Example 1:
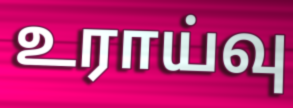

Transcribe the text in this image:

உராய்வு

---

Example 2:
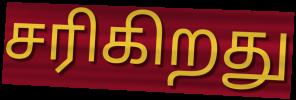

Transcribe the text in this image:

சரிகிறது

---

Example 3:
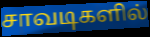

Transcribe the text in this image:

சாவடிகளில்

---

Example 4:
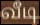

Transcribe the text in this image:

வீடி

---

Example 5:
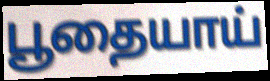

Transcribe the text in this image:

பூதையாய்